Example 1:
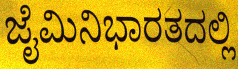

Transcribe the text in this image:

ಜೈಮಿನಿಭಾರತದಲ್ಲಿ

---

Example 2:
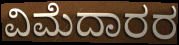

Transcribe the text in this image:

ವಿಮೆದಾರರ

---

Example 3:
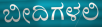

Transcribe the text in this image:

ಬೀದಿಗಳಲಿ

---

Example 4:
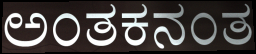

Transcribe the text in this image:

ಅಂತಕನಂತ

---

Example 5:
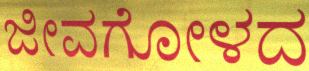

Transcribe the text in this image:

ಜೀವಗೋಳದ